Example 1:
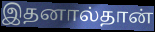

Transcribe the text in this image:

இதனால்தான்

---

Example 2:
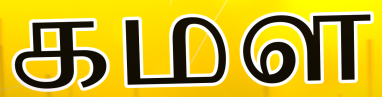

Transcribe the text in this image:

கமள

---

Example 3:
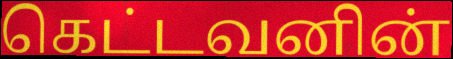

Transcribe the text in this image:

கெட்டவனின்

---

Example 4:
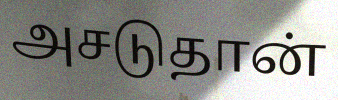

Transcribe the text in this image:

அசடுதான்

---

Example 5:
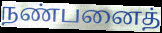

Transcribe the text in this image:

நண்பனைத்